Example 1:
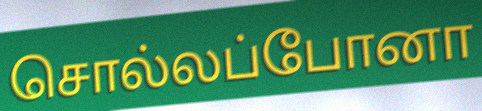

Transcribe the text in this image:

சொல்லப்போனா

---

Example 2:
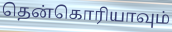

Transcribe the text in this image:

தென்கொரியாவும்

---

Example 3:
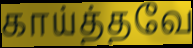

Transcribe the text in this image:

காய்த்தவே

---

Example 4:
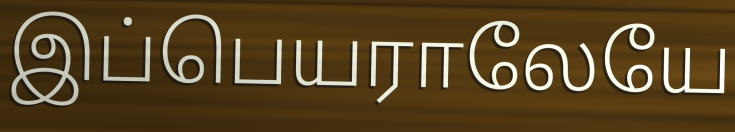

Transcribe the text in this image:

இப்பெயராலேயே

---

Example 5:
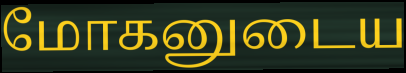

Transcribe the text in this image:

மோகனுடைய